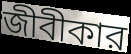
জীবীকার